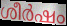
ശീർഷം